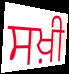
ਸਖ਼ੀ